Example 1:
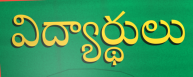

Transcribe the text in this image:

విద్యార్థులు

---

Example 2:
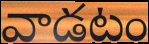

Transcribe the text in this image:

వాడటం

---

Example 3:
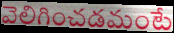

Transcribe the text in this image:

వెలిగించడమంటే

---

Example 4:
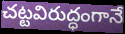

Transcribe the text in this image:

చట్టవిరుద్ధంగానే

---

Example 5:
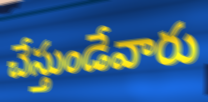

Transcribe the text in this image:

చేస్తుండేవారు